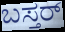
ಬಸ್ತರ್